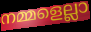
നമ്മളെല്ലാ